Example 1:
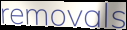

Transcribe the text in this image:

removals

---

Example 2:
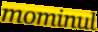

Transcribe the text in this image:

mominul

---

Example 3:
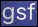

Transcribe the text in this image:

gsf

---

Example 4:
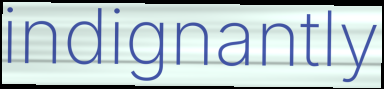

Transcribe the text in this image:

indignantly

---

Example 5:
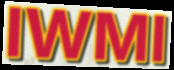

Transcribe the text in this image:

IWMI